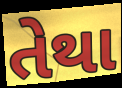
તેથા